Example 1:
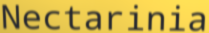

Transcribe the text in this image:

Nectarinia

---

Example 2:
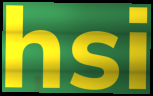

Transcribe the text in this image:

hsi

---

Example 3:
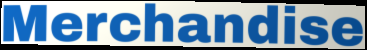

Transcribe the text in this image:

Merchandise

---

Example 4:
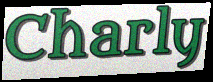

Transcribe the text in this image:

Charly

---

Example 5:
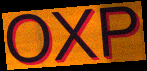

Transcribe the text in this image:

OXP